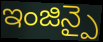
ఇంజిన్పై